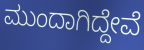
ಮುಂದಾಗಿದ್ದೇವೆ